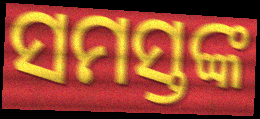
ସମସ୍ତଙ୍କ